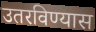
उतरविण्यास